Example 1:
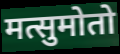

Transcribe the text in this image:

मत्सुमोतो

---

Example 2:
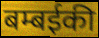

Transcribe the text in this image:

बम्बईकी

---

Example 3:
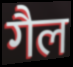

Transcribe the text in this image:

गैल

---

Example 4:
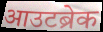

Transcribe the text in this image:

आउटब्रेक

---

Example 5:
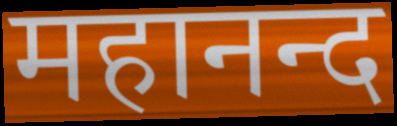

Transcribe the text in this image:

महानन्द